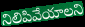
నిలిపివేయాలని